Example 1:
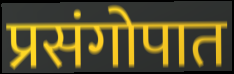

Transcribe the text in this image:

प्रसंगोपात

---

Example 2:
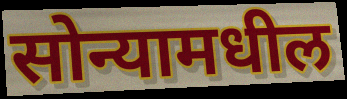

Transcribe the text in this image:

सोन्यामधील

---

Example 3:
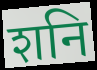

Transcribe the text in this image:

शनि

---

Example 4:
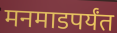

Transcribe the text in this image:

मनमाडपर्यंत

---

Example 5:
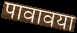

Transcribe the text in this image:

पावावया